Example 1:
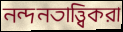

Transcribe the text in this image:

নন্দনতাত্ত্বিকরা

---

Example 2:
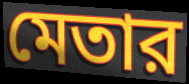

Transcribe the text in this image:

মেতার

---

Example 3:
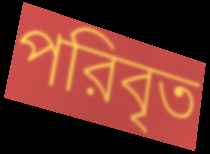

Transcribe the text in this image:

পরিবৃত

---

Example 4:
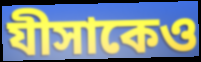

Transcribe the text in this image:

যীসাকেও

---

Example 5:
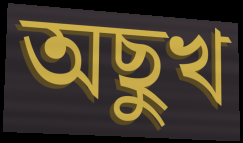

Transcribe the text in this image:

অছুখ